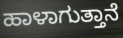
ಹಾಳಾಗುತ್ತಾನೆ